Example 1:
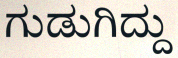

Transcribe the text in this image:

ಗುಡುಗಿದ್ದು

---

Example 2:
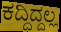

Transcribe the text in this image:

ಕದ್ದಿದ್ದಲ್ಲ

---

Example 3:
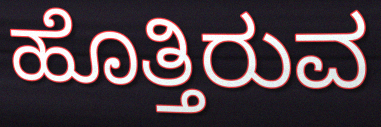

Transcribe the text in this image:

ಹೊತ್ತಿರುವ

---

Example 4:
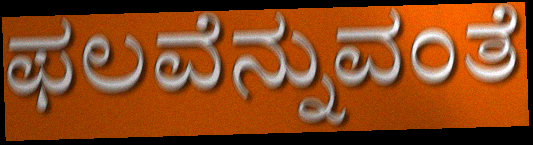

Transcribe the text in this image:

ಫಲವೆನ್ನುವಂತೆ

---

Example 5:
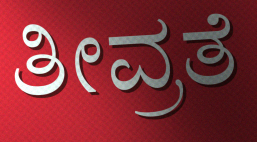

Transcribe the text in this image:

ತೀವ್ರತೆ